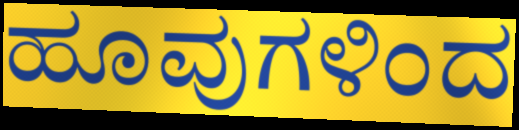
ಹೂವುಗಳಿಂದ